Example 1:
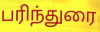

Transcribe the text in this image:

பரிந்துரை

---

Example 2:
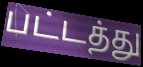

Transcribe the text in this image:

பட்டத்து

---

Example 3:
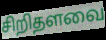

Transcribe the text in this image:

சிறிதளவை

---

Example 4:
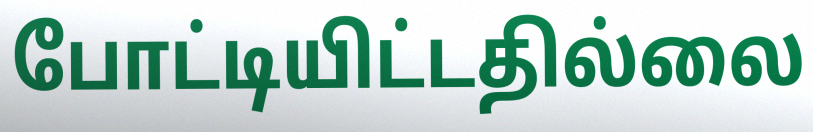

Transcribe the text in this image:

போட்டியிட்டதில்லை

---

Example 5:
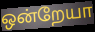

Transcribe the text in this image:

ஒன்றேயா